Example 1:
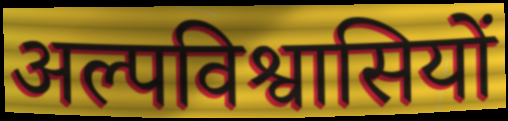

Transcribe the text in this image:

अल्पविश्वासियों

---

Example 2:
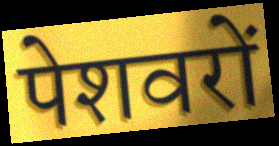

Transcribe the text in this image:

पेशवरों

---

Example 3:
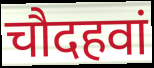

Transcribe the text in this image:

चौदहवां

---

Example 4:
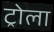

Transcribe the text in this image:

ट्रोला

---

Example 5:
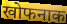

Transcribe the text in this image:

खोफनाक